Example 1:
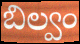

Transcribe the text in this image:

బిల్వం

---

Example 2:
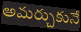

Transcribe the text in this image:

అమర్చుకునే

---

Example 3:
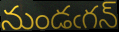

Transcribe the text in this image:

నుండఁగన్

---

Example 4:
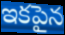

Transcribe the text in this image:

ఇకపైన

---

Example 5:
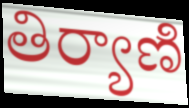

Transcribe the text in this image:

తిర్యాణి